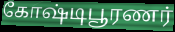
கோஷ்டிபூரணர்